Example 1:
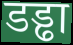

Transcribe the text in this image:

डड्ढा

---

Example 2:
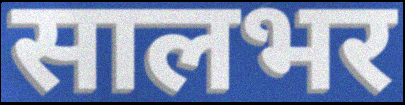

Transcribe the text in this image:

सालभर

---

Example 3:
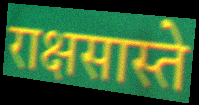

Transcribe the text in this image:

राक्षसास्ते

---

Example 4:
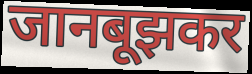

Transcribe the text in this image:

जानबूझकर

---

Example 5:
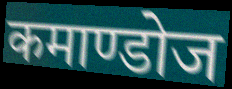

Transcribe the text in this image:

कमाण्डोज